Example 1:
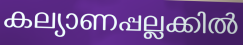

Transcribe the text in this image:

കല്യാണപ്പല്ലക്കിൽ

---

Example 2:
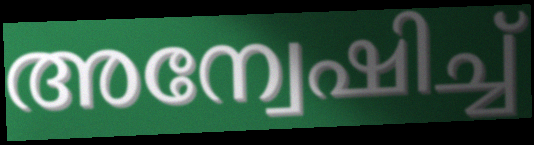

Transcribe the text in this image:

അന്വേഷിച്ച്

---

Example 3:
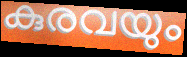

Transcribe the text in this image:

കുരവയും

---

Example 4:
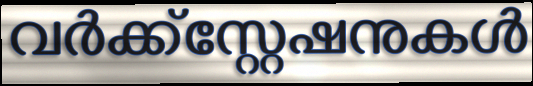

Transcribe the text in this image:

വർക്ക്സ്റ്റേഷനുകൾ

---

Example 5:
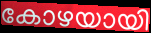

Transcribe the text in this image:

കോഴയായി